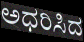
ಅಧರಿಸಿದ